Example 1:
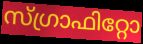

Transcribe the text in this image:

സ്ഗ്രാഫിറ്റോ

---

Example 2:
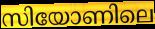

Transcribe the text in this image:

സിയോണിലെ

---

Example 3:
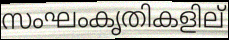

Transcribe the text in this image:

സംഘംകൃതികളില്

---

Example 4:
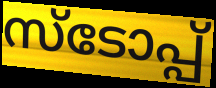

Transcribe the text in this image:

സ്ടോപ്പ്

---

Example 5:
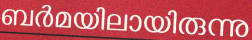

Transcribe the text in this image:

ബർമയിലായിരുന്നു